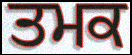
ਤਮਕ